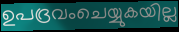
ഉപദ്രവംചെയ്യുകയില്ല